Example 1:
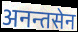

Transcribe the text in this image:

अनन्तसेन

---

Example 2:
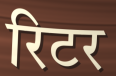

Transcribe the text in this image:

रिटर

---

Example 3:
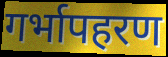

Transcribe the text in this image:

गर्भापहरण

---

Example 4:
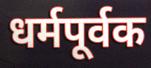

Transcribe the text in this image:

धर्मपूर्वक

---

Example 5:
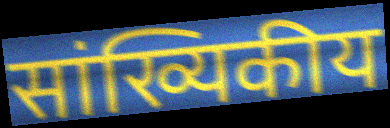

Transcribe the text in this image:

सांख्यिकीय